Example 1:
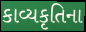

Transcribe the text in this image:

કાવ્યકૃતિના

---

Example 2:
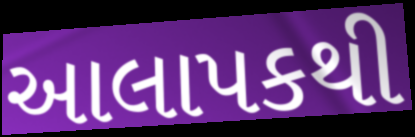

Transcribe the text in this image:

આલાપકથી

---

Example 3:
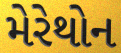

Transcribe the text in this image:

મેરેથોન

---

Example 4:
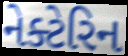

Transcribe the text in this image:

નેક્ટેરિન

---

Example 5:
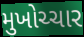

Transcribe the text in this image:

મુખોચ્ચાર